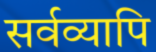
सर्वव्यापि